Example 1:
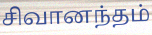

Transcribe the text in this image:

சிவானந்தம்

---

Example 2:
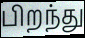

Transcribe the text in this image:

பிறந்து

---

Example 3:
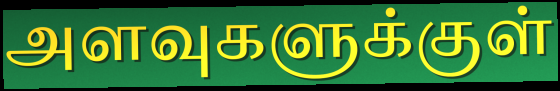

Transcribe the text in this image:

அளவுகளுக்குள்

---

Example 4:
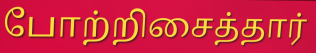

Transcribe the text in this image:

போற்றிசைத்தார்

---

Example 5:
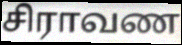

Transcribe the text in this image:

சிராவண